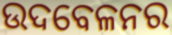
ଉଦବେଳନର